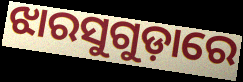
ଝାରସୁଗୁଡ଼ାରେ